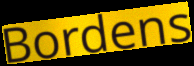
Bordens